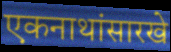
एकनाथांसारखे